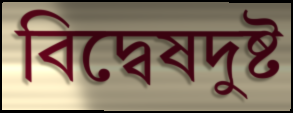
বিদ্বেষদুষ্ট